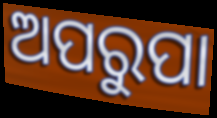
ଅପରୁପା